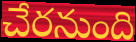
చేరనుంది